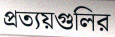
প্রত্যয়গুলির